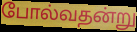
போல்வதன்று